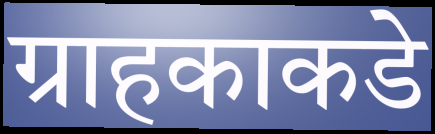
ग्राहकाकडे